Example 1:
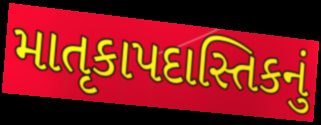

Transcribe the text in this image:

માતૃકાપદાસ્તિકનું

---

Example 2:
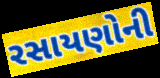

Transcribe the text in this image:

રસાયણોની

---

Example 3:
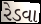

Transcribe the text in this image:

રેડવા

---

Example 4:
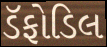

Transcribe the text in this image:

ડૅફોડિલ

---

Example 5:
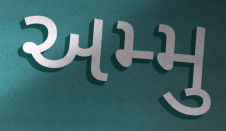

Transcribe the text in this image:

અમ્મુ